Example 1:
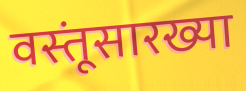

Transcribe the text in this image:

वस्तूंसारख्या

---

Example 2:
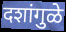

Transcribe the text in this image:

दशांगुळे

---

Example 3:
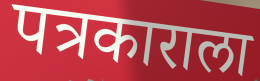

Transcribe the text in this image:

पत्रकाराला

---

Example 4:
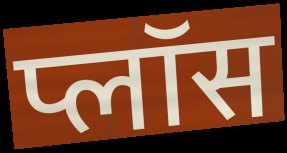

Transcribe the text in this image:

प्लॉस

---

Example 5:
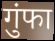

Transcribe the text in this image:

गुंफा